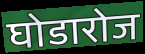
घोडारोज